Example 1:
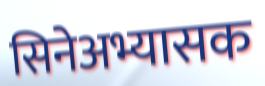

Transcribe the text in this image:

सिनेअभ्यासक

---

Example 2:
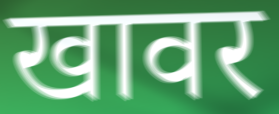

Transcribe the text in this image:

खावर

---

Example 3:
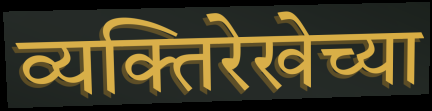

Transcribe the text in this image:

व्यक्तिरेखेच्या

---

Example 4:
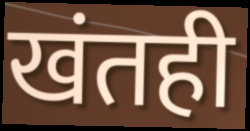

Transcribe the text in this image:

खंतही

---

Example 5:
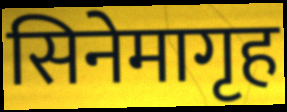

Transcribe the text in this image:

सिनेमागृह